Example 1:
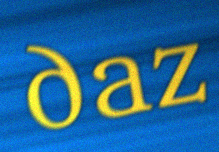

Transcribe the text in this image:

daz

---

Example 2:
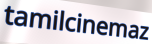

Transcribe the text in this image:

tamilcinemaz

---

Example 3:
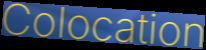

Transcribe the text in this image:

Colocation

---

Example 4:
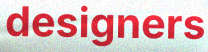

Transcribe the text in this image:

designers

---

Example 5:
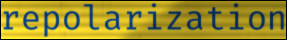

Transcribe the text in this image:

repolarization